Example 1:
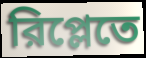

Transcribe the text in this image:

রিপ্লেতে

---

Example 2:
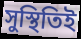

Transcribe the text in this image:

সুস্থিতিই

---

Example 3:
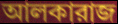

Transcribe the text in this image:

আলকারাজ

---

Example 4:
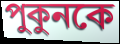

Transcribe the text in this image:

পুকুনকে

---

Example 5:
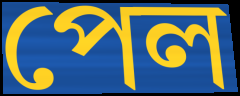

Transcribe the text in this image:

পেল